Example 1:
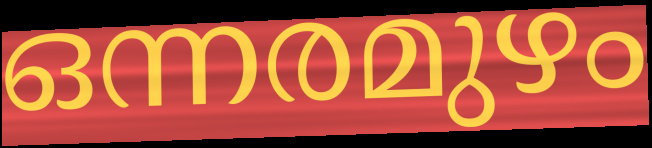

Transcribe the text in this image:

ഒന്നരമുഴം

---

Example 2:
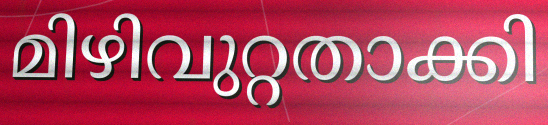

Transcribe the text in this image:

മിഴിവുറ്റതാക്കി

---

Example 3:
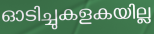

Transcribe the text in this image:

ഓടിച്ചുകളകയില്ല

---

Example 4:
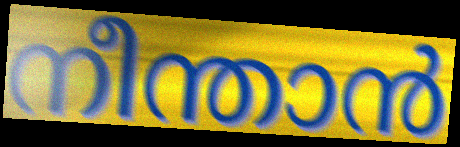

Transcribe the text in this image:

നീന്താൻ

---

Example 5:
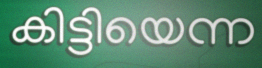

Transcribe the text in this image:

കിട്ടിയെന്ന